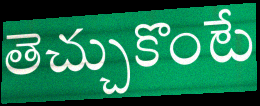
తెచ్చుకొంటే